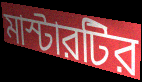
মাস্টারটির